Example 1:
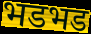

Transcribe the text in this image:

भडभड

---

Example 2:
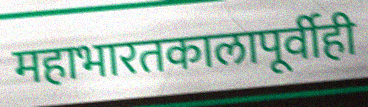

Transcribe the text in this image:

महाभारतकालापूर्वीही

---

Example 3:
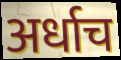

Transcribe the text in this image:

अर्धाच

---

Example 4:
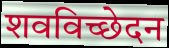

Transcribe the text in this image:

शवविच्छेदन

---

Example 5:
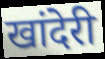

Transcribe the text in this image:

खांदेरी